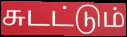
சுடட்டும்